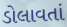
ડોલાવતાં